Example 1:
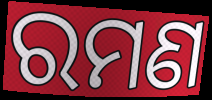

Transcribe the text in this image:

ରମଣ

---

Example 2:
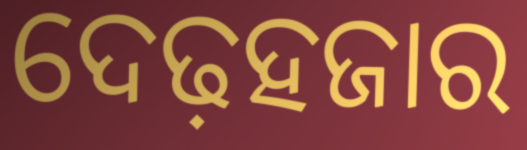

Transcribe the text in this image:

ଦେଢ଼ହଜାର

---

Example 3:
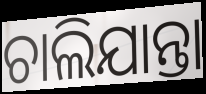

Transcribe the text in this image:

ଚାଲିଯାନ୍ତା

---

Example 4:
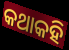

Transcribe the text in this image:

କଥାକହି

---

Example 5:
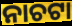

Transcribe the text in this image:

ନାଚଟା